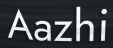
Aazhi